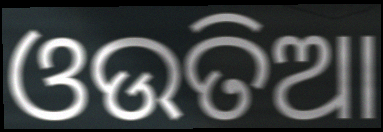
ଓଉତିଆ